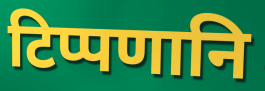
टिप्पणानि